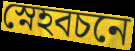
স্নেহবচনে